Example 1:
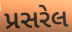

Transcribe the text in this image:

પ્રસરેલ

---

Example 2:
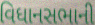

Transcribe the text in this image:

વિધાનસભાની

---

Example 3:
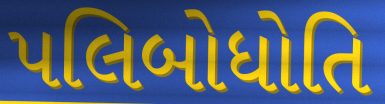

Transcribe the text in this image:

પલિબોધોતિ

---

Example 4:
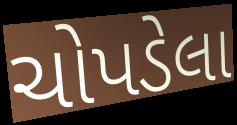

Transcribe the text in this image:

ચોપડેલા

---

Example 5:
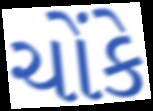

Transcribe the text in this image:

ચોંકે